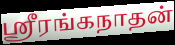
ஸ்ரீரங்கநாதன்